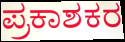
ಪ್ರಕಾಶಕರ